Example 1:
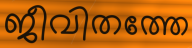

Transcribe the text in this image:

ജീവിതത്തേ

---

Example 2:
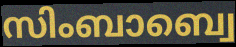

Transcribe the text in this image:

സിംബാബ്വെ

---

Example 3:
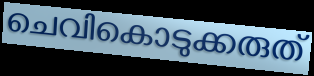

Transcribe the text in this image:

ചെവികൊടുക്കരുത്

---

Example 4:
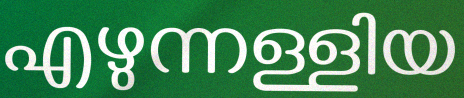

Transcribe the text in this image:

എഴുന്നള്ളിയ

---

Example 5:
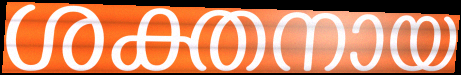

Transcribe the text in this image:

ശക്തനായ